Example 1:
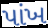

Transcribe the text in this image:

પાંખ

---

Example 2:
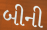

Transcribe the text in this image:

બીની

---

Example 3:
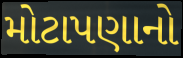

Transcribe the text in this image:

મોટાપણાનો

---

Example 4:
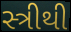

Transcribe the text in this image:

સ્ત્રીથી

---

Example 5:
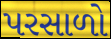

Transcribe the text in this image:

પરસાળો